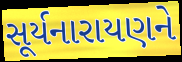
સૂર્યનારાયણને